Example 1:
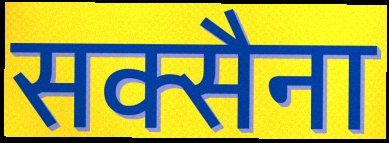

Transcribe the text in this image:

सक्सैना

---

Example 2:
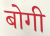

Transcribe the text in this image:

बोगी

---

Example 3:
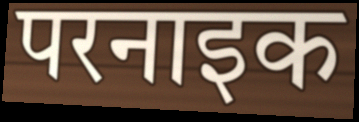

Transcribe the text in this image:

परनाइक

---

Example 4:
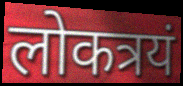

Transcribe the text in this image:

लोकत्रयं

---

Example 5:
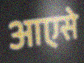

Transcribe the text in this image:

आएसे